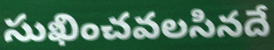
సుఖించవలసినదే